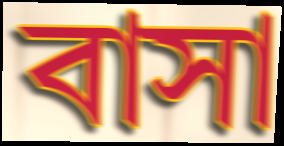
বাসা